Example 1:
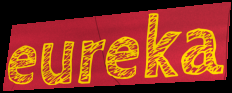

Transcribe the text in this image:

eureka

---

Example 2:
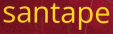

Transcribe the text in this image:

santape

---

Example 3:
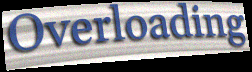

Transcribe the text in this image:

Overloading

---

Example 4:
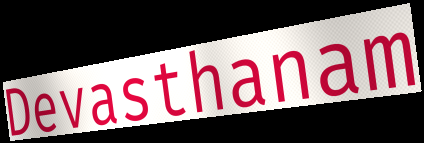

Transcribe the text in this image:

Devasthanam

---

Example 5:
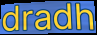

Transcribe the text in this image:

dradh